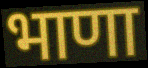
भाणा